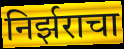
निर्झराचा